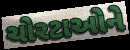
ચોરટાઓને